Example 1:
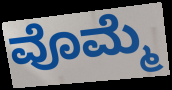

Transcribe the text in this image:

ವೊಮ್ಮೆ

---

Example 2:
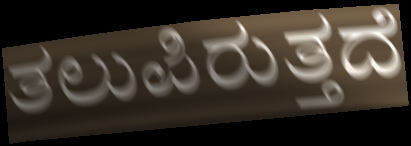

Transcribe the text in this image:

ತಲುಪಿರುತ್ತದೆ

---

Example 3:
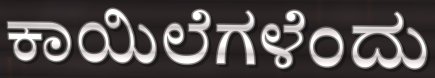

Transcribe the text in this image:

ಕಾಯಿಲೆಗಳೆಂದು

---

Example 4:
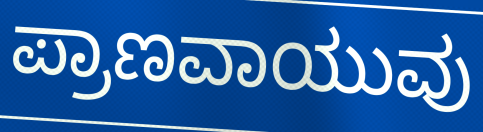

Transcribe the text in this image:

ಪ್ರಾಣವಾಯುವು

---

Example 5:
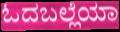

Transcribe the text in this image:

ಓದಬಲ್ಲೆಯಾ